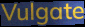
Vulgate